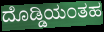
ದೊಡ್ಡಿಯಂತಹ